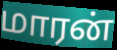
மாரன்